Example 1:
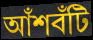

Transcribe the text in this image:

আঁশবঁটি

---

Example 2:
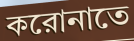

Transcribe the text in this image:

করোনাতে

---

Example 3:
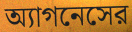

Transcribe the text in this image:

অ্যাগনেসের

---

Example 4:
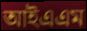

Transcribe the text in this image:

আইএএম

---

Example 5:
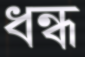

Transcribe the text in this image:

ধন্ধ